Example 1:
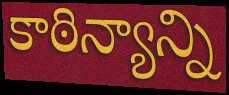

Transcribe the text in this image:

కాఠిన్యాన్ని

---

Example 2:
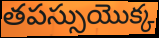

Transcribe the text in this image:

తపస్సుయొక్క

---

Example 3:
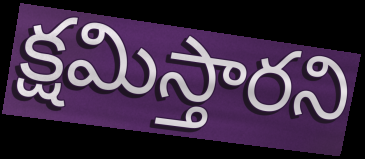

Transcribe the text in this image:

క్షమిస్తారని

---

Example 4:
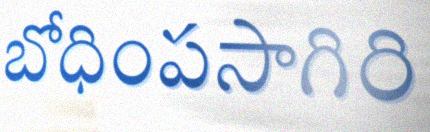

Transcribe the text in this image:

బోధింపసాగిరి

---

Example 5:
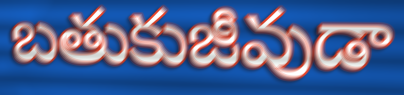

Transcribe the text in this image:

బతుకుజీవుడా